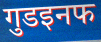
गुडइनफ